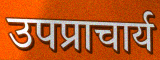
उपप्राचार्य